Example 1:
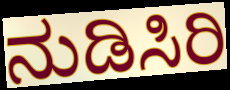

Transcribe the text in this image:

ನುಡಿಸಿರಿ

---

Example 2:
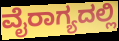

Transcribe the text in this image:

ವೈರಾಗ್ಯದಲ್ಲಿ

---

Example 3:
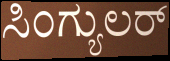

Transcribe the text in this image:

ಸಿಂಗ್ಯುಲರ್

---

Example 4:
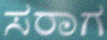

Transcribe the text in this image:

ಸರಾಗ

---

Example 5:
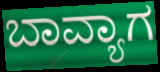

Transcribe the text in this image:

ಬಾವ್ಯಾಗ